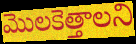
మొలకెత్తాలని